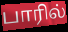
பாரில்